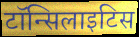
टॉन्सिलाइटिस